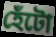
হেঁটো